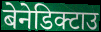
बेनेडिक्टाउ